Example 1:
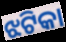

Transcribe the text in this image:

ଝଟିକା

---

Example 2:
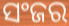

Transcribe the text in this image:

ସଂଜର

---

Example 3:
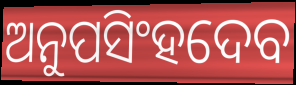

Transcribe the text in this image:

ଅନୁପସିଂହଦେବ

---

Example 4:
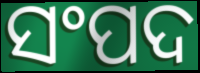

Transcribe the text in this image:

ସଂପଦ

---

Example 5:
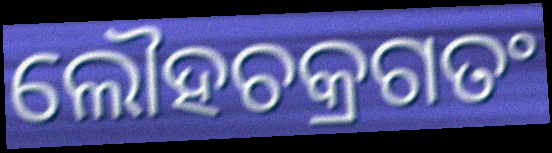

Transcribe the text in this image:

ଲୌହଚକ୍ରଗତଂ